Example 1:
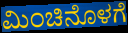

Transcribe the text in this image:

ಮಿಂಚಿನೊಳಗೆ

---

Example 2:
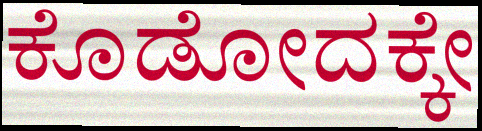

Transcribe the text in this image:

ಕೊಡೋದಕ್ಕೇ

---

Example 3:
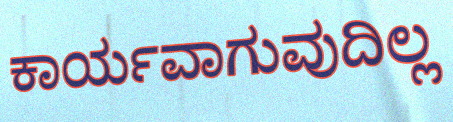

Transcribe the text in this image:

ಕಾರ್ಯವಾಗುವುದಿಲ್ಲ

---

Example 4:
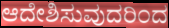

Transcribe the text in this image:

ಆದೇಶಿಸುವುದರಿಂದ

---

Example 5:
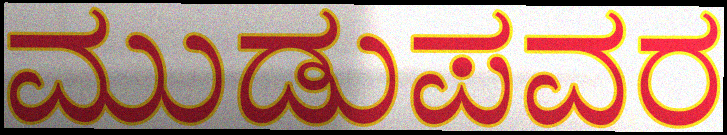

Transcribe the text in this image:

ಮುಡುಪವರ